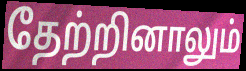
தேற்றினாலும்